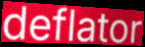
deflator